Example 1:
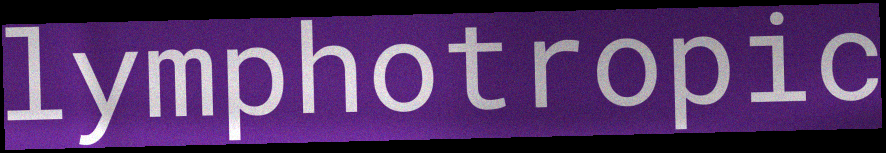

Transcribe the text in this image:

lymphotropic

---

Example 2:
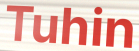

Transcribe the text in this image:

Tuhin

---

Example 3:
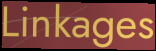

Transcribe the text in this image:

Linkages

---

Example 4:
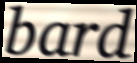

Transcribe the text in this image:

bard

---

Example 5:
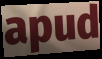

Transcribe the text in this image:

apud